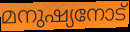
മനുഷ്യനോട്